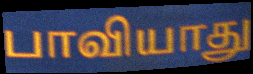
பாவியாது